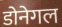
डोनेगल